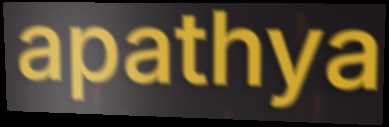
apathya